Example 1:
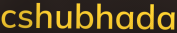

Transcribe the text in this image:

cshubhada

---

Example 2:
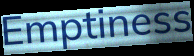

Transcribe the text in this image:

Emptiness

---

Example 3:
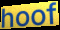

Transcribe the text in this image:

hoof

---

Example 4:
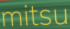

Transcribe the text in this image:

mitsu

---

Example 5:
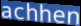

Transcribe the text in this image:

achhen